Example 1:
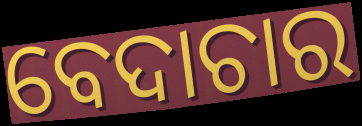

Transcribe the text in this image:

ବେଦାଚାର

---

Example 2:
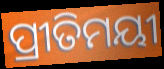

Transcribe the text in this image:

ପ୍ରୀତିମୟୀ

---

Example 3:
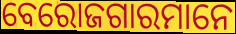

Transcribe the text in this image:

ବେରୋଜଗାରମାନେ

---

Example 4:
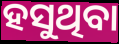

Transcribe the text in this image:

ହସୁଥିବା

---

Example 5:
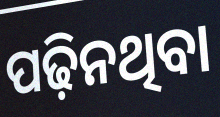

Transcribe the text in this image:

ପଢ଼ିନଥିବା